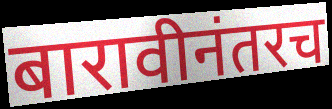
बारावीनंतरच